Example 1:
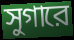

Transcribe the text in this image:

সুগারে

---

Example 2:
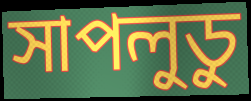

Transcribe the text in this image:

সাপলুডু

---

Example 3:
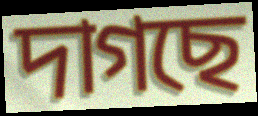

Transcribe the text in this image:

দাগছে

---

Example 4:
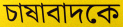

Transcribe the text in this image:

চাষাবাদকে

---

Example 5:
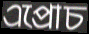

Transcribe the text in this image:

এপ্রোচ